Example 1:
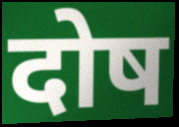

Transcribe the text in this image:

दोष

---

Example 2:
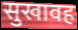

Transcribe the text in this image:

सुखावह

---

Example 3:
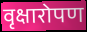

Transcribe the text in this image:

वृक्षारोपण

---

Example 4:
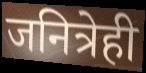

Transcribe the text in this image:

जनित्रेही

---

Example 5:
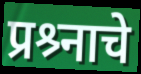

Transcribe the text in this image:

प्रश्र्नाचे